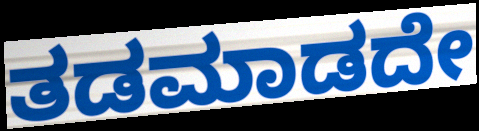
ತಡಮಾಡದೇ